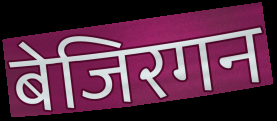
बेजिरगन